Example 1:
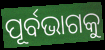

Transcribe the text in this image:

ପୂର୍ବଭାଗକୁ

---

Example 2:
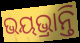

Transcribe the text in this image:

ଭୟଭ୍ରାନ୍ତି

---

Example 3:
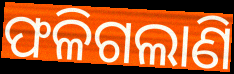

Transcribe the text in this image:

ଫଳିଗଲାଣି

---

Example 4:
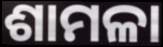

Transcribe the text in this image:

ଶାମଳା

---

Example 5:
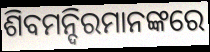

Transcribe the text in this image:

ଶିବମନ୍ଦିରମାନଙ୍କରେ